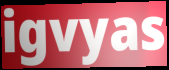
igvyas